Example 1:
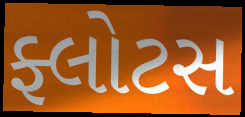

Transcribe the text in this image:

ફ્લોટસ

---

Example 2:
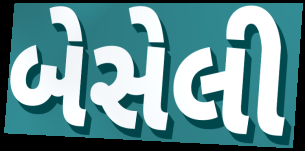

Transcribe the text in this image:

બેસેલી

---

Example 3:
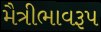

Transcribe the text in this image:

મૈત્રીભાવરૂપ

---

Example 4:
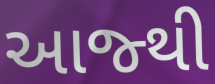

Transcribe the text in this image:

આજ્થી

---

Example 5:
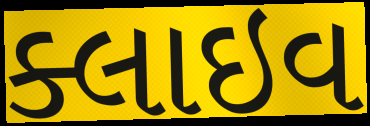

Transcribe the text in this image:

ક્લાઇવ